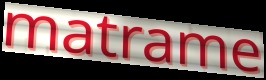
matrame